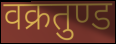
वक्रतुण्ड